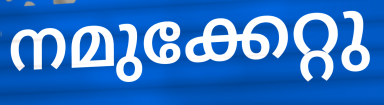
നമുക്കേറ്റു